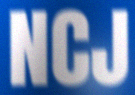
NCJ